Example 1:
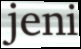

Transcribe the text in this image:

jeni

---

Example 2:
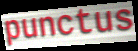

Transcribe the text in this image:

punctus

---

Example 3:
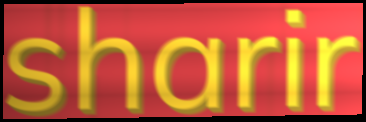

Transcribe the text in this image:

sharir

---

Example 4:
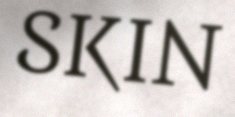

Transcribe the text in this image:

SKIN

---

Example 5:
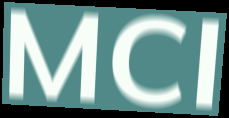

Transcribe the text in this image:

MCI